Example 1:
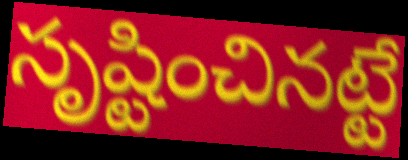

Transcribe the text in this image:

సృష్టించినట్టే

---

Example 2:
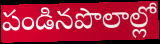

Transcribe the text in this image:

పండినపొలాల్లో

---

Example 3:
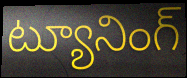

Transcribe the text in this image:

ట్యూనింగ్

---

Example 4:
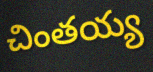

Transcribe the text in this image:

చింతయ్య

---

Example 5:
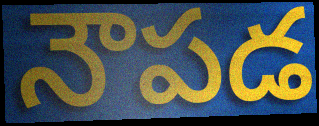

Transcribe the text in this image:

నౌపడ